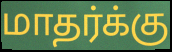
மாதர்க்கு